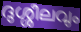
ദുശ്ശീലവും